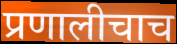
प्रणालीचाच